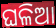
ଘଳିଆ